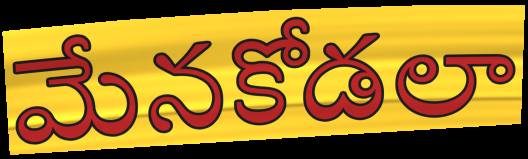
మేనకోడలా